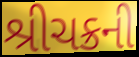
શ્રીચક્રની